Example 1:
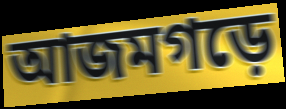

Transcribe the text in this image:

আজমগড়ে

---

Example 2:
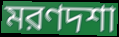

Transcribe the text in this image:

মরণদশা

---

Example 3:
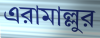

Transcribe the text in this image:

এরামাল্লুর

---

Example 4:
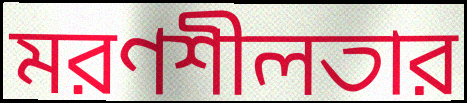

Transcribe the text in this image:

মরণশীলতার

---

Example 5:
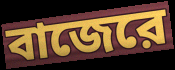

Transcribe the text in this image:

বাজেরে